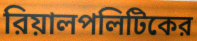
রিয়ালপলিটিকের